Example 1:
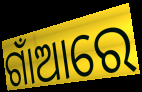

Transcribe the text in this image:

ଗାଁଆରେ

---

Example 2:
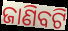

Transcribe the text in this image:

ଜାଣିବଟି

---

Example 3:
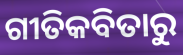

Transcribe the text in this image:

ଗୀତିକବିତାରୁ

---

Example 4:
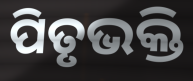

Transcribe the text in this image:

ପିତୃଭକ୍ତି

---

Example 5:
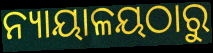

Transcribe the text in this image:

ନ୍ୟାୟାଳୟଠାରୁ